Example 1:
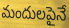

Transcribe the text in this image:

మందులపైనే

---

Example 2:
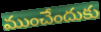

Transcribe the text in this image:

ముంచేందుకు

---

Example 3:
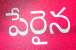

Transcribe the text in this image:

పేరైన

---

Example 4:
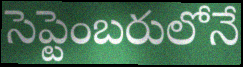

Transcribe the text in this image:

సెప్టెంబరులోనే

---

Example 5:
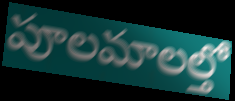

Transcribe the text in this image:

పూలమాలల్తో